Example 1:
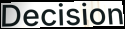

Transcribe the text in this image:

Decision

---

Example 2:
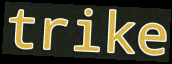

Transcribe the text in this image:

trike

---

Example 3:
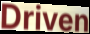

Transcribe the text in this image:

Driven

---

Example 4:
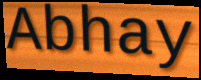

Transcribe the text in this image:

Abhay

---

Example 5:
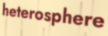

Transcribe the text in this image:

heterosphere